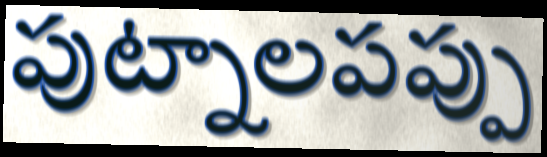
పుట్నాలపప్పు